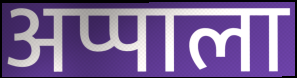
अप्पाला